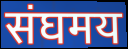
संघमय